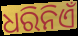
ଧରିନିଏଁ